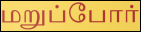
மறுப்போர்